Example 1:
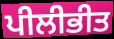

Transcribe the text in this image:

ਪੀਲੀਭੀਤ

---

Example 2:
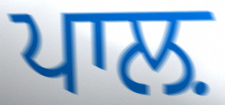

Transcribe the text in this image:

ਪਾਲ਼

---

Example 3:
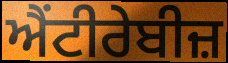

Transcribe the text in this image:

ਐਂਟੀਰੇਬੀਜ਼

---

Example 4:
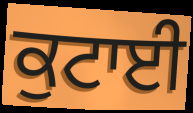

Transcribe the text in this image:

ਕੁਟਾਈ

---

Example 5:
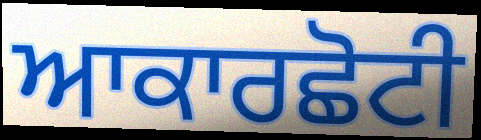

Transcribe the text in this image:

ਆਕਾਰਛੋਟੀ